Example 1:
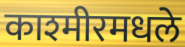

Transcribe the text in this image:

काश्‍मीरमधले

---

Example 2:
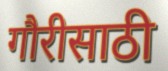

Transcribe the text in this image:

गौरीसाठी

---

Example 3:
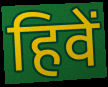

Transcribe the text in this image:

हिवें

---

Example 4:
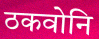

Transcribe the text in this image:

ठकवोनि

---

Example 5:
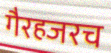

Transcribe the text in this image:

गैरहजरच